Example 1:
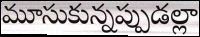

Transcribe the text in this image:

మూసుకున్నప్పుడల్లా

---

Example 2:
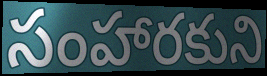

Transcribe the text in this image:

సంహారకుని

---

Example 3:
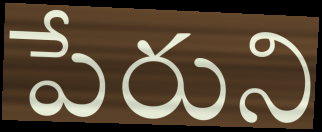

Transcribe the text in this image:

పేరుని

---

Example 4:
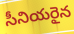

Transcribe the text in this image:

సీనియరైన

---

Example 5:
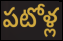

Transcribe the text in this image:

పటోళ్ల